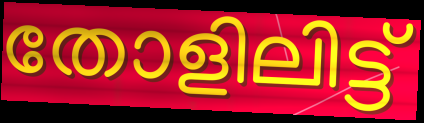
തോളിലിട്ട്